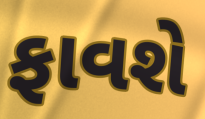
ફાવશે